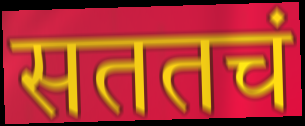
सततचं